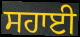
ਸਹਾਈ